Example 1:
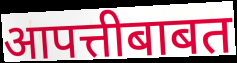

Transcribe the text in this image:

आपत्तीबाबत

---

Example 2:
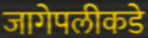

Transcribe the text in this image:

जागेपलीकडे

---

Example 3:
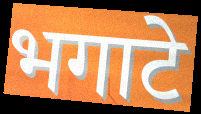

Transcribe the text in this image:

भगाटे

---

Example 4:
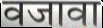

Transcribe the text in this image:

वजावा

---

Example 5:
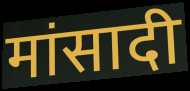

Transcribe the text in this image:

मांसादी